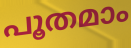
പൂതമാം